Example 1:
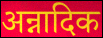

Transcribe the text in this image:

अन्नादिक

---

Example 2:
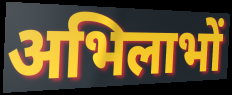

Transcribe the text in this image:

अभिलाभों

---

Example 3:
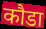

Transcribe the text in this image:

कौडा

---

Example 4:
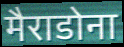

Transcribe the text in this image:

मैराडोना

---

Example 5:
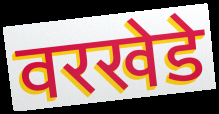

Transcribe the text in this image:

वरखेडे